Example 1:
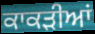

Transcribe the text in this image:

ਕਾਕੜੀਆਂ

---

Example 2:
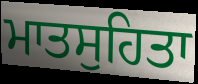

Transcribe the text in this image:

ਮਾਤਸੁਹਿਤਾ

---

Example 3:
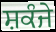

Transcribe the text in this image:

ਸ਼ਕੰਜੇ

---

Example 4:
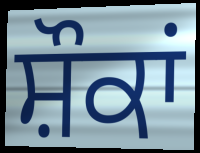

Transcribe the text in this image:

ਸ਼ੌਕਾਂ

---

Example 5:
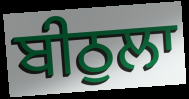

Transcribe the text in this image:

ਬੀਠੁਲਾ